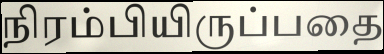
நிரம்பியிருப்பதை